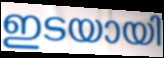
ഇടയായി